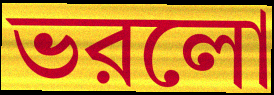
ভরলো